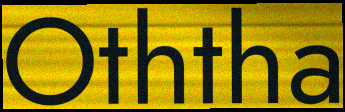
Oththa